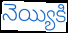
నెయ్యికి